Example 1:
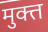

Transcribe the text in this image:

मुक्त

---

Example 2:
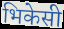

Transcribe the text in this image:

भिकेसी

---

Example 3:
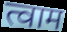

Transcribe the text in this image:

त्वाम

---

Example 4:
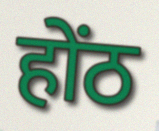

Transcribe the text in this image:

होंठ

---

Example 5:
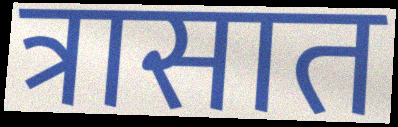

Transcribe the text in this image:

त्रासात